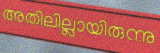
അതിലില്ലായിരുന്നു